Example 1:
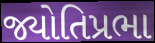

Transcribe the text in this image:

જ્યોતિપ્રભા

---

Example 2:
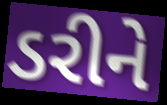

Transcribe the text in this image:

ડરીને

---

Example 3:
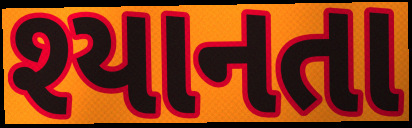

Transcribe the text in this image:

શ્યાનતા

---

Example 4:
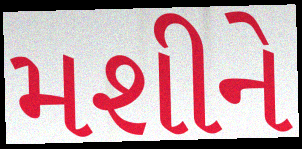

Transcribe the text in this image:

મશીને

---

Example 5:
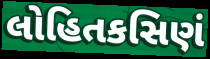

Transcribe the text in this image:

લોહિતકસિણં